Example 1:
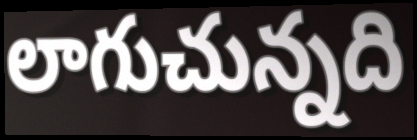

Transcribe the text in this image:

లాగుచున్నది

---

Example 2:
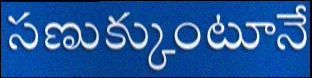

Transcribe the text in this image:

సణుక్కుంటూనే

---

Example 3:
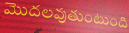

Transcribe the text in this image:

మొదలవుతుంటుంది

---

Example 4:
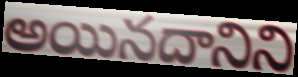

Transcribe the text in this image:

అయినదానిని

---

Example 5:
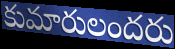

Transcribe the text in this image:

కుమారులందరు